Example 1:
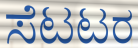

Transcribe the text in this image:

ಸೆಟಟರ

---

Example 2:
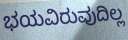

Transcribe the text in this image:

ಭಯವಿರುವುದಿಲ್ಲ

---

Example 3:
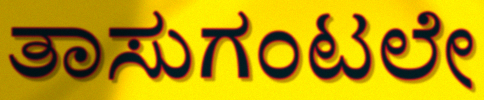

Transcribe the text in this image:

ತಾಸುಗಂಟಲೇ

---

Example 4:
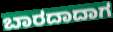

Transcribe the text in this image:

ಬಾರದಾದಾಗ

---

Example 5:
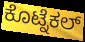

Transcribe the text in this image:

ಕೊಟ್ನೆಕಲ್